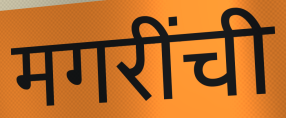
मगरींची